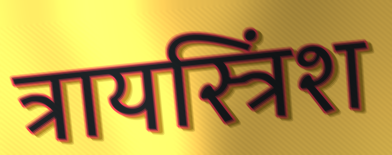
त्रायस्त्रिंश